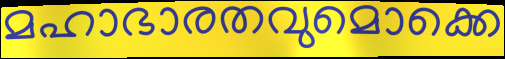
മഹാഭാരതവുമൊക്കെ